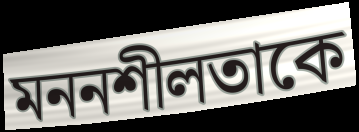
মননশীলতাকে